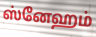
ஸ்னேஹம்